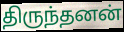
திருந்தனன்